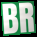
BR